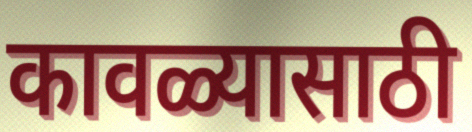
कावळ्यासाठी